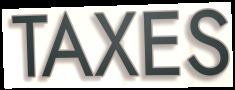
TAXES